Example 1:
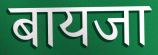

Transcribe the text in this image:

बायजा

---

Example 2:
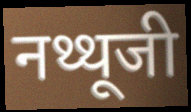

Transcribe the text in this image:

नथ्थूजी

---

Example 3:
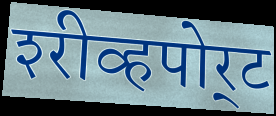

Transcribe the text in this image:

श्रीव्हपोर्ट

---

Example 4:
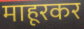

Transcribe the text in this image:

माहूरकर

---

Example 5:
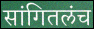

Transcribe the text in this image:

सांगितलंच